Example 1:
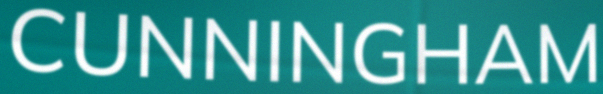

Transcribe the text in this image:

CUNNINGHAM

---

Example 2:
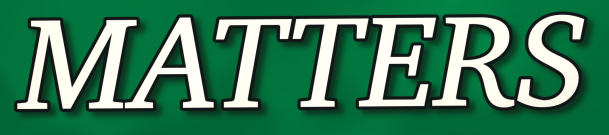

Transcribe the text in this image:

MATTERS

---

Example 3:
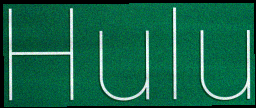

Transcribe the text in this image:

Hulu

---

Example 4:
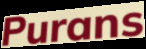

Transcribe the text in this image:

Purans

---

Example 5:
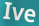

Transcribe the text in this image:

Ive